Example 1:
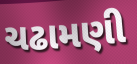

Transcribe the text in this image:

ચઢામણી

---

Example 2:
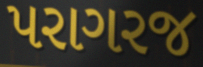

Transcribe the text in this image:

પરાગરજ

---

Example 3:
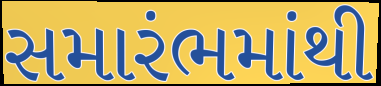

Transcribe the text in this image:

સમારંભમાંથી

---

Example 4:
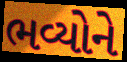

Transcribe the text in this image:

ભવ્યોને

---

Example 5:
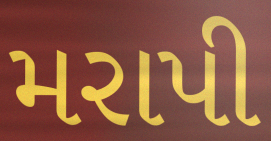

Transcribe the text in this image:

મરાપી